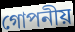
গোপনীয়